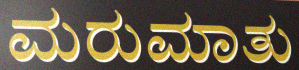
ಮರುಮಾತು